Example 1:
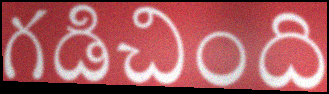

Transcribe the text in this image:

గడిచింది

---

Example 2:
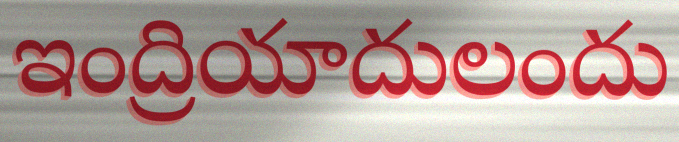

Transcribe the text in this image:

ఇంద్రియాదులందు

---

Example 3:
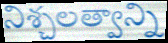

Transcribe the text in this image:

నిశ్చలత్వాన్ని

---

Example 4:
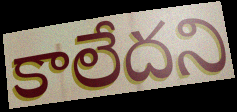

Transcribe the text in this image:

కాలేదని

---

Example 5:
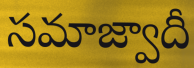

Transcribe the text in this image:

సమాజ్వాదీ